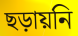
ছড়ায়নি